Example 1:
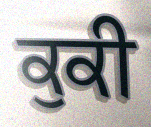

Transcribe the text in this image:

ਕੁਕੀ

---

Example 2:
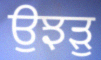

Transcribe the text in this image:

ਉਝੜੁ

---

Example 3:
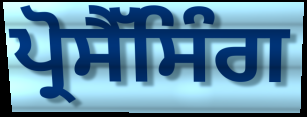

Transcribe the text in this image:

ਪ੍ਰੋਸੈੱਸਿੰਗ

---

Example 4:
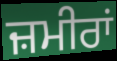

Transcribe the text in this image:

ਜ਼ਮੀਰਾਂ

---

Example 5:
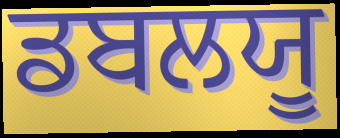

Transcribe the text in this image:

ਡਬਲਯੂ